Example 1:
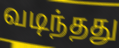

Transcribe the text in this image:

வடிந்தது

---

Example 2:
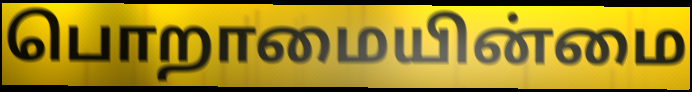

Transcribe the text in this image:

பொறாமையின்மை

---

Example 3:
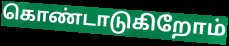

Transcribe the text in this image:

கொண்டாடுகிறோம்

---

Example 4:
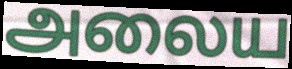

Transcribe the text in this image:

அலைய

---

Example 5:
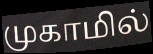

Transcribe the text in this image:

முகாமில்